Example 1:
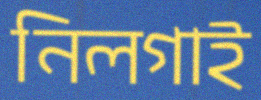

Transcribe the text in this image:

নিলগাই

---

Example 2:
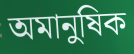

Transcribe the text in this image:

অমানুষিক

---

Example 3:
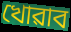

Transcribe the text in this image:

খোৱাব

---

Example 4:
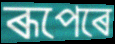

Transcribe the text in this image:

ৰূপেৰে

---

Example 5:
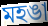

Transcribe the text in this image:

মহঙা